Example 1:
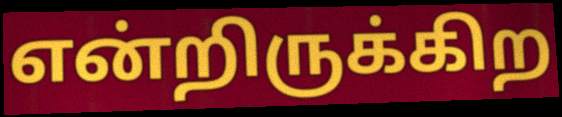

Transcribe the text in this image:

என்றிருக்கிற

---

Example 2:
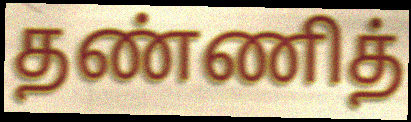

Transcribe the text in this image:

தண்ணித்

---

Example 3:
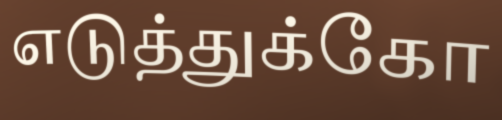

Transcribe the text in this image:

எடுத்துக்கோ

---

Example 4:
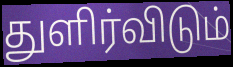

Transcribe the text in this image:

துளிர்விடும்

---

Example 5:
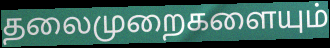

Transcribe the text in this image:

தலைமுறைகளையும்